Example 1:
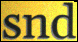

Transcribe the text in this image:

snd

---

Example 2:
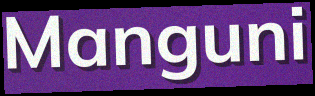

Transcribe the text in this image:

Manguni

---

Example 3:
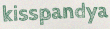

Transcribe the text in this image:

kisspandya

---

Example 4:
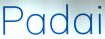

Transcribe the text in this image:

Padai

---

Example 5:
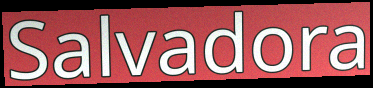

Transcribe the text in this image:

Salvadora